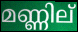
മണ്ണില്